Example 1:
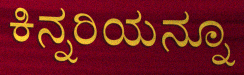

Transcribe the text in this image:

ಕಿನ್ನರಿಯನ್ನೂ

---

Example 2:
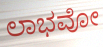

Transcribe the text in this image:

ಲಾಭವೋ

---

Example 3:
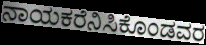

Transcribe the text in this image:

ನಾಯಕರೆನಿಸಿಕೊಂಡವರ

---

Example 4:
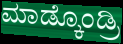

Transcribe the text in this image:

ಮಾಡ್ಕೊಂಡ್ರಿ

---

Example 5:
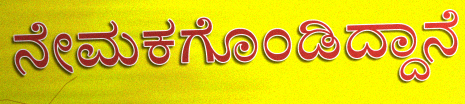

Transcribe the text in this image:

ನೇಮಕಗೊಂಡಿದ್ದಾನೆ